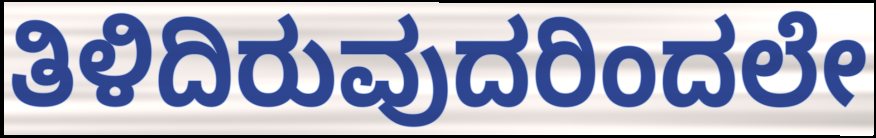
ತಿಳಿದಿರುವುದರಿಂದಲೇ